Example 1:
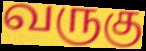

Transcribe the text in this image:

வருகு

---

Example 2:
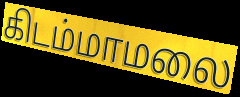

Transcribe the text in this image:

கிடம்மாமலை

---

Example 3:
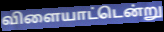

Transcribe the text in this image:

விளையாட்டென்று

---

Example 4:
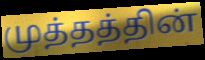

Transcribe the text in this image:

முத்தத்தின்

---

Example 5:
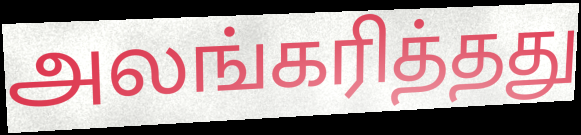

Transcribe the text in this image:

அலங்கரித்தது